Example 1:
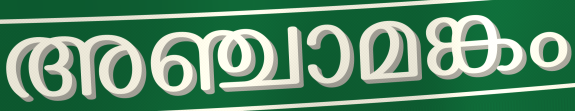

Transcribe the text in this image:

അഞ്ചാമങ്കം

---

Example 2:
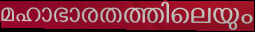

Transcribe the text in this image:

മഹാഭാരതത്തിലെയും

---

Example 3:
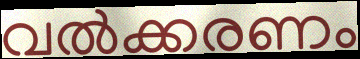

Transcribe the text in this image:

വൽക്കരണം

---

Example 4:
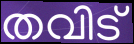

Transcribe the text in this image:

തവിട്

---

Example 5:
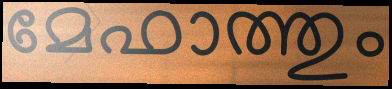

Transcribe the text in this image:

മേഫാത്തും